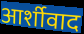
आर्शीवाद